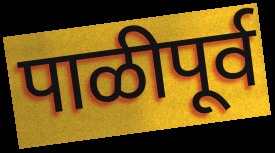
पाळीपूर्व